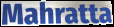
Mahratta